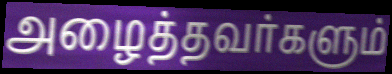
அழைத்தவர்களும்